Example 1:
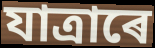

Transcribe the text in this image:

যাত্ৰাৰে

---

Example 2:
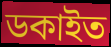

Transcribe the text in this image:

ডকাইত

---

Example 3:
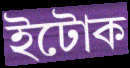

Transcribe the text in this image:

ইটোক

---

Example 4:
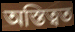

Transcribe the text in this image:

অস্তিত্বত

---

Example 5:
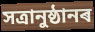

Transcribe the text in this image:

সত্ৰানুষ্ঠানৰ